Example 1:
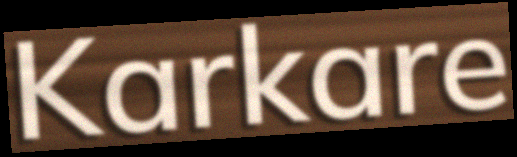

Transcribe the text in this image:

Karkare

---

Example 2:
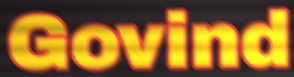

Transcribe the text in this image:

Govind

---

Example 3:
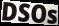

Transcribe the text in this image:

DSOs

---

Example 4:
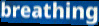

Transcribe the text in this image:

breathing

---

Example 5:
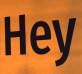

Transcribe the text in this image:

Hey